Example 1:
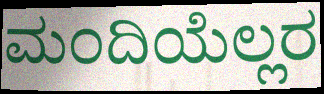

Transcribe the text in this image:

ಮಂದಿಯೆಲ್ಲರ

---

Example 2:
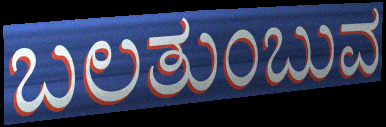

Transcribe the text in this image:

ಬಲತುಂಬುವ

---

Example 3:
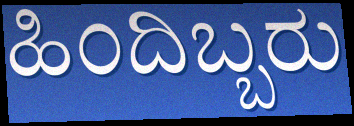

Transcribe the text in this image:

ಹಿಂದಿಬ್ಬರು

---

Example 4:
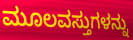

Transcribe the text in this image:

ಮೂಲವಸ್ತುಗಳನ್ನು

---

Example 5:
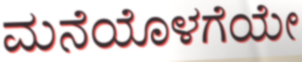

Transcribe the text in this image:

ಮನೆಯೊಳಗೆಯೇ